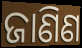
ଜାଣିଣ